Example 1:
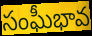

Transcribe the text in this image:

సంఘీభావ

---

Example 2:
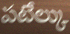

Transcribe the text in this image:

పటేల్కు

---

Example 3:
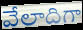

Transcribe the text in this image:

వేలాదిగా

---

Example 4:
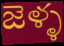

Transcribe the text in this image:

జెళ్ళ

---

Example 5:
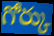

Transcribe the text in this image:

గోర్కు